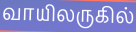
வாயிலருகில்